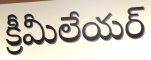
క్రీమీలేయర్